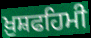
ਖ਼ੁਸ਼ਫਹਿਮੀ